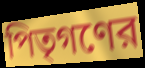
পিতৃগণের